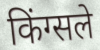
किंग्सले